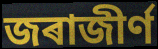
জৰাজীৰ্ণ